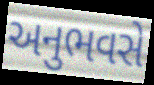
અનુભવસે